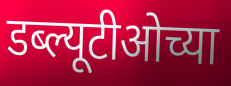
डब्ल्यूटीओच्या